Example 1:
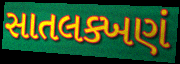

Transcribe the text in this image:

સાતલક્ખણં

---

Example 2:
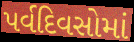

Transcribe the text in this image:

પર્વદિવસોમાં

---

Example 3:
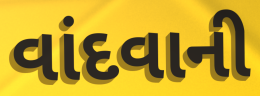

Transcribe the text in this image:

વાંદવાની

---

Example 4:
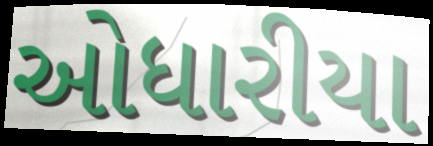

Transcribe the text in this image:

ઓધારીયા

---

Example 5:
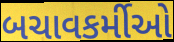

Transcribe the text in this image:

બચાવકર્મીઓ